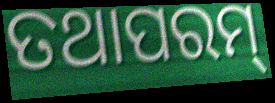
ତଥାପରମ୍